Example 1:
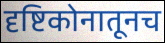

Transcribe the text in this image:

दृष्टिकोनातूनच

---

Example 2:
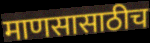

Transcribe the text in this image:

माणसासाठीच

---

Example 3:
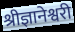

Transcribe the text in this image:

श्रीज्ञानेश्वरी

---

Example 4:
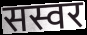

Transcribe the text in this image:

सस्वर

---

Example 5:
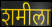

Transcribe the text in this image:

शमीला